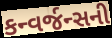
કન્વર્જન્સની